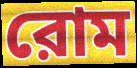
রোম